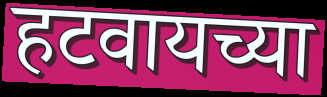
हटवायच्या